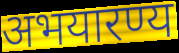
अभयारण्य